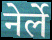
नेर्ले